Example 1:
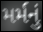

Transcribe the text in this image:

મર્મનું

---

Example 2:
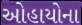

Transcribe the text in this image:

ઓહાયોના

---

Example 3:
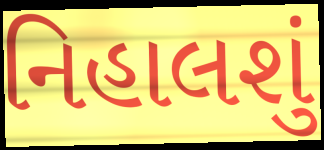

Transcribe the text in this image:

નિહાલશું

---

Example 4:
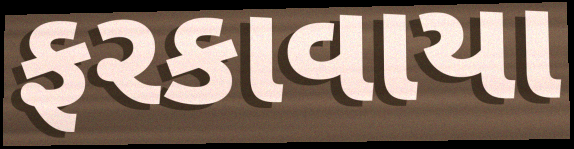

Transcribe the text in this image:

ફરકાવાયા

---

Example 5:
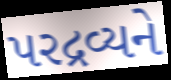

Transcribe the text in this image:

પરદ્રવ્યને